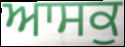
ਆਸਕੁ